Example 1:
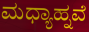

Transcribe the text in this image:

ಮಧ್ಯಾಹ್ನವೆ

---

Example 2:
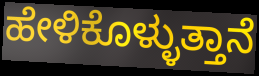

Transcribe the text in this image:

ಹೇಳಿಕೊಳ್ಳುತ್ತಾನೆ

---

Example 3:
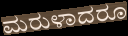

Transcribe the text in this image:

ಮರುಳಾದರೂ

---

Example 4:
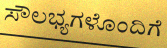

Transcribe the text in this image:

ಸೌಲಭ್ಯಗಳೊಂದಿಗೆ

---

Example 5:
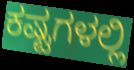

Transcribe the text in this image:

ಕಷ್ಟಗಳಲ್ಲಿ